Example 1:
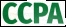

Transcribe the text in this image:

CCPA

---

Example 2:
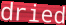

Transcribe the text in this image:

dried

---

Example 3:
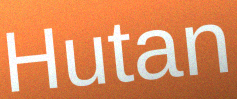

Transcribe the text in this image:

Hutan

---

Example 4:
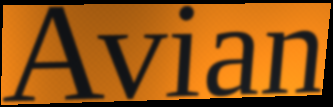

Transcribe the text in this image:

Avian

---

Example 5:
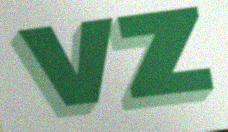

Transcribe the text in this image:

vz